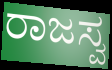
ರಾಜಸ್ವ